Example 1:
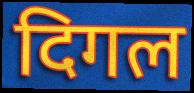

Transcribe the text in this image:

दिगल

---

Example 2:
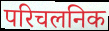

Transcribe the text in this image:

परिचलनिक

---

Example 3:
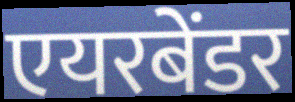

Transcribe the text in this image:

एयरबेंडर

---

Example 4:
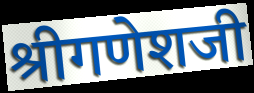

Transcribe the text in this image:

श्रीगणेशजी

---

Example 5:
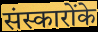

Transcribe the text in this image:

संस्कारोंके